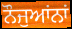
ਨੌਜੁਆਂਨਾਂ